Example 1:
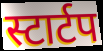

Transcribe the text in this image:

स्टार्टप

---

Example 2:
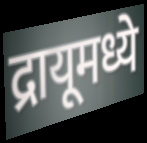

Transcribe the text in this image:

द्रायूमध्ये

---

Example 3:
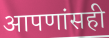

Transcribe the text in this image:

आपणांसही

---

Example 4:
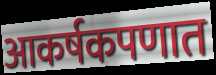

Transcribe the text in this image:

आकर्षकपणात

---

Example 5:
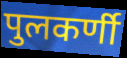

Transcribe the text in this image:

पुलकर्णी